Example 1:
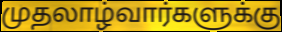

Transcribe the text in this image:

முதலாழ்வார்களுக்கு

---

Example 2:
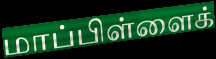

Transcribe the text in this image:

மாப்பிள்ளைக்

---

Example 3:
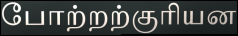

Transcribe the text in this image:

போற்றற்குரியன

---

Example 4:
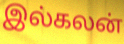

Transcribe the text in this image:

இல்கலன்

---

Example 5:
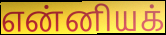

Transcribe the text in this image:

என்னியக்